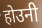
होउनी